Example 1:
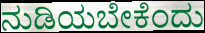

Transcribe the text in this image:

ನುಡಿಯಬೇಕೆಂದು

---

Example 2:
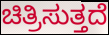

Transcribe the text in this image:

ಚಿತ್ರಿಸುತ್ತದೆ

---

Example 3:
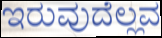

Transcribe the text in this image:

ಇರುವುದೆಲ್ಲವ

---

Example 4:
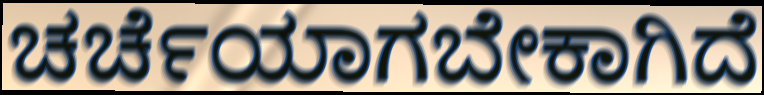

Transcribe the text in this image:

ಚರ್ಚೆಯಾಗಬೇಕಾಗಿದೆ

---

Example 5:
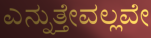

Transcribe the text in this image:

ಎನ್ನುತ್ತೇವಲ್ಲವೇ